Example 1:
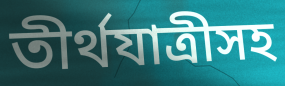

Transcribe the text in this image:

তীর্থযাত্রীসহ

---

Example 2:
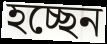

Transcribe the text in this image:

হচ্ছেন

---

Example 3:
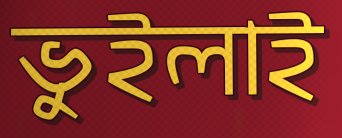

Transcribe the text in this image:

ভুইলাই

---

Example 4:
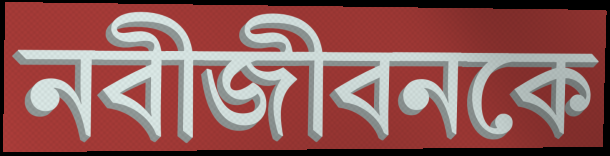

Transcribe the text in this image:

নবীজীবনকে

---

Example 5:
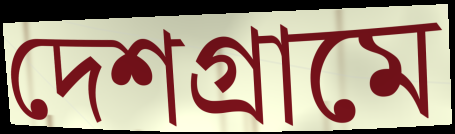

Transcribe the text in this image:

দেশগ্রামে